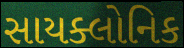
સાયક્લોનિક